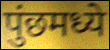
पुंछमध्ये